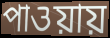
পাওয়ায়